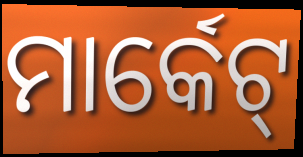
ମାର୍କେଟ୍